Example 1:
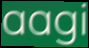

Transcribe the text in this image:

aagi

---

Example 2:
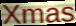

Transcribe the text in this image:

Xmas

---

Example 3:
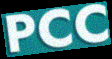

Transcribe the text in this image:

PCC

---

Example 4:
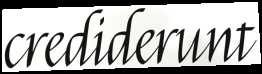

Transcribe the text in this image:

crediderunt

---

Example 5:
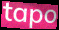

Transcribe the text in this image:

tapo